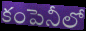
కంపెనీలో